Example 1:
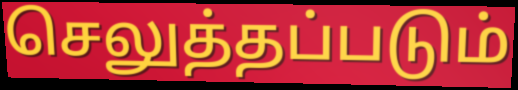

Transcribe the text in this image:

செலுத்தப்படும்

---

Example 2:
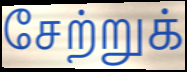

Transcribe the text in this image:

சேற்றுக்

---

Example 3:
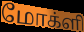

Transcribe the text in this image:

மோக்ளி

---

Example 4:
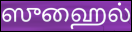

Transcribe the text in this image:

ஸுஹைல்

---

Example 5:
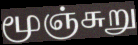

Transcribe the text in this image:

மூஞ்சுறு